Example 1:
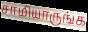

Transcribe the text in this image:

சாமியாருங்க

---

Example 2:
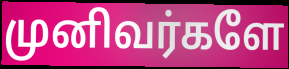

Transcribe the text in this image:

முனிவர்களே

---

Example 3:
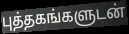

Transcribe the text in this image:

புத்தகங்களுடன்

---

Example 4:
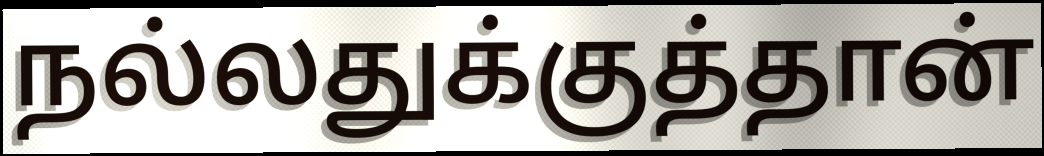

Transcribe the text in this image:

நல்லதுக்குத்தான்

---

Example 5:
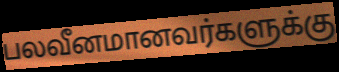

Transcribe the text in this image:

பலவீனமானவர்களுக்கு